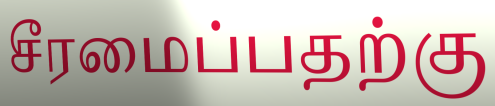
சீரமைப்பதற்கு